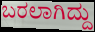
ಬರಲಾಗಿದ್ದು